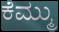
ಕೆಮ್ಮು